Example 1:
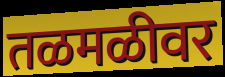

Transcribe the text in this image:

तळमळीवर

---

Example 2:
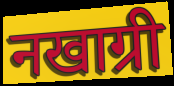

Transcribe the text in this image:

नखाग्री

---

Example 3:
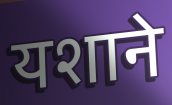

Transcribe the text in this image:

यशाने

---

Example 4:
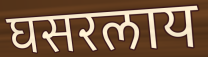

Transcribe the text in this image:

घसरलाय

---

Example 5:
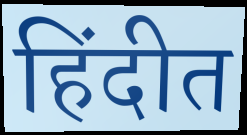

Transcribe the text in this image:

हिंदीत